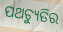
ପଥଚ୍ୟୁତିର